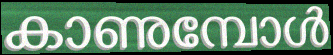
കാണുമ്പോൾ